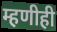
म्हणीही